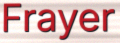
Frayer